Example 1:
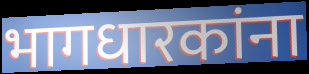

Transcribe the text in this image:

भागधारकांना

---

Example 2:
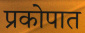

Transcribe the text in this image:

प्रकोपात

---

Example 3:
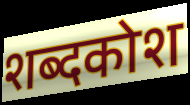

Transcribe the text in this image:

शब्दकोश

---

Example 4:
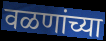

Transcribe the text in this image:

वळणांच्या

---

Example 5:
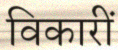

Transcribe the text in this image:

विकारीं